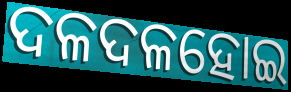
ଦଳଦଳହୋଇ